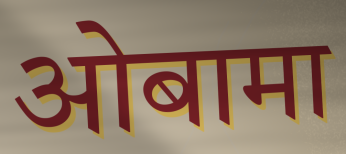
ओबामा